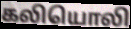
கலியொலி